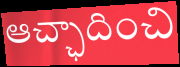
ఆచ్ఛాదించి